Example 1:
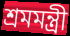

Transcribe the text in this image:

শ্রমমন্ত্রী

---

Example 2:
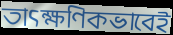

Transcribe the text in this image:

তাৎক্ষণিকভাবেই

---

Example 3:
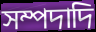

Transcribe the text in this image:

সম্পদাদি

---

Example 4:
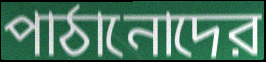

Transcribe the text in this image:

পাঠানোদের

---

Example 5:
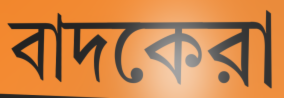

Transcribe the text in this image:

বাদকেরা